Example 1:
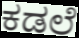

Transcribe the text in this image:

ಕಡಲೆ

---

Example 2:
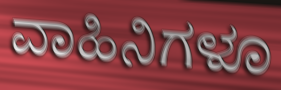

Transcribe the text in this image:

ವಾಹಿನಿಗಳೂ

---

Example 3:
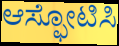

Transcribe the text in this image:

ಆಸ್ಫೋಟಿಸಿ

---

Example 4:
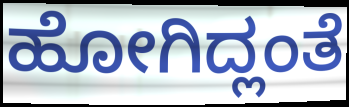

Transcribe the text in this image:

ಹೋಗಿದ್ಲಂತೆ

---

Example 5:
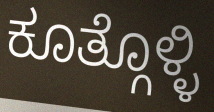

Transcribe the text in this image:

ಕೂತ್ಗೊಳ್ಳಿ